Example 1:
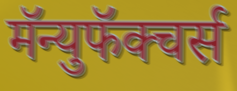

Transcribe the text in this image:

मॅन्युफॅक्चर्स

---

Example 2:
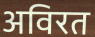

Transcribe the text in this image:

अविरत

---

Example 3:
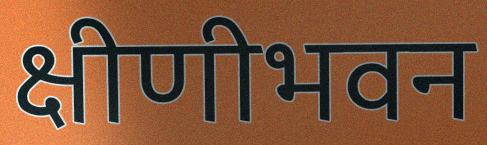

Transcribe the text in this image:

क्षीणीभवन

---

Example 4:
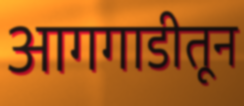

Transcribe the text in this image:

आगगाडीतून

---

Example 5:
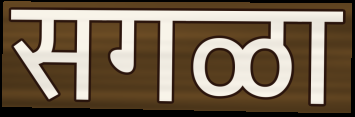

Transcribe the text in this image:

सगळा